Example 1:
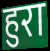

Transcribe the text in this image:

हुरा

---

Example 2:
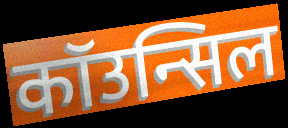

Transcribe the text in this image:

कॉउन्सिल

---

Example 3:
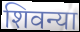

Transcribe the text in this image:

शिवन्या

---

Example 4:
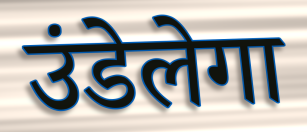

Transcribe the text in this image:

उंडेलेगा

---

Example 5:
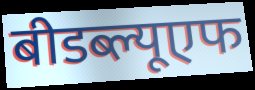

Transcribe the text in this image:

बीडब्ल्यूएफ